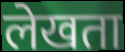
लेखता